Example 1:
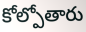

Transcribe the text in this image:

కోల్పోతారు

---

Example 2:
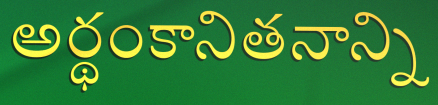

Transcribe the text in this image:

అర్థంకానితనాన్ని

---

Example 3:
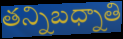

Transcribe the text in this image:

తన్నిబధ్నాతి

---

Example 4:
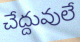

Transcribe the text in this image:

చేద్దువులే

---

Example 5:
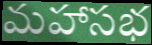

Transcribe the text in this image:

మహాసభ